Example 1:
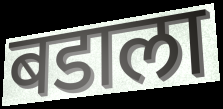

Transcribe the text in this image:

बडाला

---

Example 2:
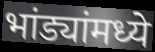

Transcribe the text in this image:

भांड्यांमध्ये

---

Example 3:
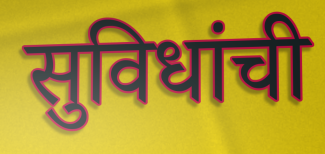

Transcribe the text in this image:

सुविधांची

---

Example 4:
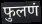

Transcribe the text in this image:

फुलणं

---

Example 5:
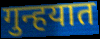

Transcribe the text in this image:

गुन्हयात